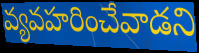
వ్యవహరించేవాడని